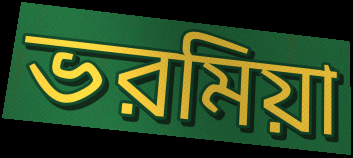
ভরমিয়া